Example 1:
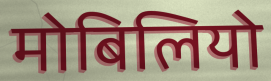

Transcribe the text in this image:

मोबिलियो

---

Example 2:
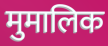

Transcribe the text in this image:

मुमालिक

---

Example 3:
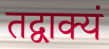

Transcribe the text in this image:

तद्वाक्यं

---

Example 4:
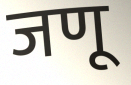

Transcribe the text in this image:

जणू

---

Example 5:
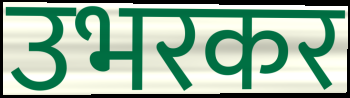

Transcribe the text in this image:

उभरकर